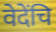
वेदेंचि